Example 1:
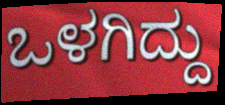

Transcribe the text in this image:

ಒಳಗಿದ್ದು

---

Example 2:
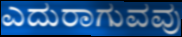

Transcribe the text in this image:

ಎದುರಾಗುವವು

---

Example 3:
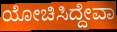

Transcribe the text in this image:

ಯೋಚಿಸಿದ್ದೇವಾ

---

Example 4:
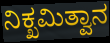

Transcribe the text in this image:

ನಿಕ್ಖಮಿತ್ವಾನ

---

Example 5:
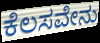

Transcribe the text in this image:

ಕೆಲಸವೇನು